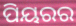
ପିୟରର